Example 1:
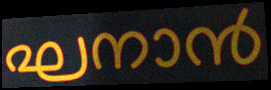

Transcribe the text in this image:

ഘനാൻ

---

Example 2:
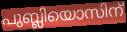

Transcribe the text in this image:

പുബ്ലിയൊസിന്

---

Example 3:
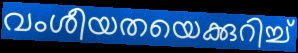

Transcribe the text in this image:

വംശീയതയെക്കുറിച്ച്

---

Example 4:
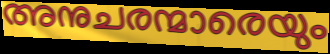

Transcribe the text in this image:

അനുചരന്മാരെയും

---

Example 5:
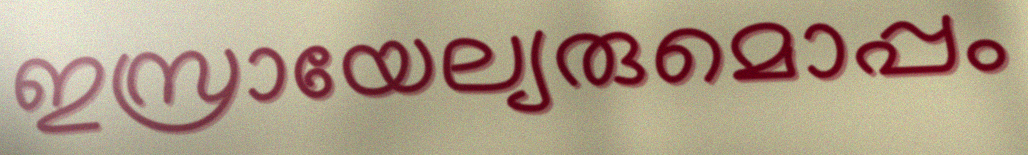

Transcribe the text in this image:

ഇസ്രായേല്യരുമൊപ്പം